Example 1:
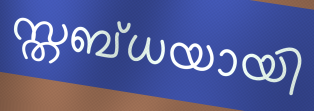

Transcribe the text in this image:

സ്തബ്ധയായി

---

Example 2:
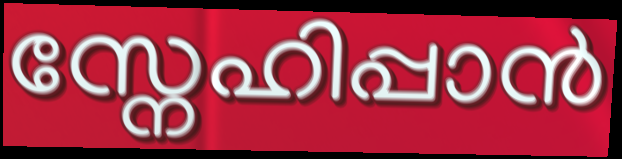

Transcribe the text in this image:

സ്നേഹിപ്പാൻ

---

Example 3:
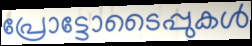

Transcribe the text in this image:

പ്രോട്ടോടൈപ്പുകൾ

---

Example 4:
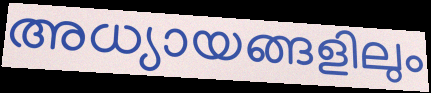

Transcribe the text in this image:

അധ്യായങ്ങളിലും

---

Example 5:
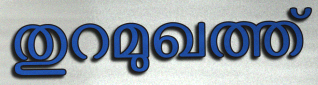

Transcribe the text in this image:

തുറമുഖത്ത്